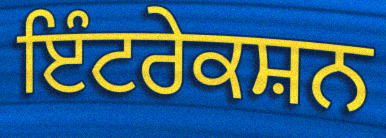
ਇੰਟਰੇਕਸ਼ਨ